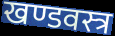
खण्डवस्त्र